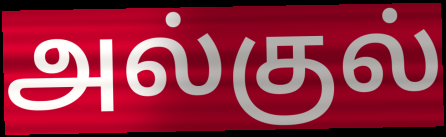
அல்குல்